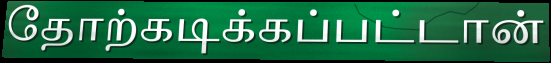
தோற்கடிக்கப்பட்டான்